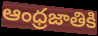
ఆంధ్రజాతికి